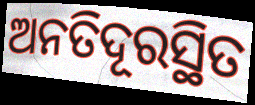
ଅନତିଦୂରସ୍ଥିତ